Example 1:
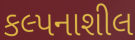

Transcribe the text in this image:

કલ્પનાશીલ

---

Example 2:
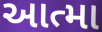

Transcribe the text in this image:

આત્મા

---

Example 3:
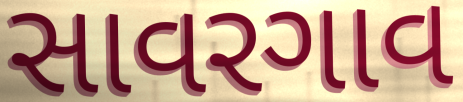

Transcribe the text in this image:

સાવરગાવ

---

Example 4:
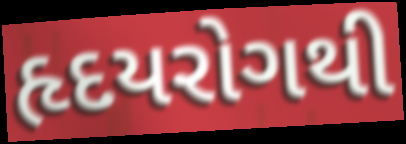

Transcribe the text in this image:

હૃદયરોગથી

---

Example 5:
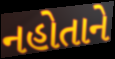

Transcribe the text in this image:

નહોતાને